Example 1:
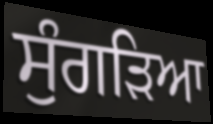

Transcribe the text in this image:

ਸੁੰਗੜਿਆ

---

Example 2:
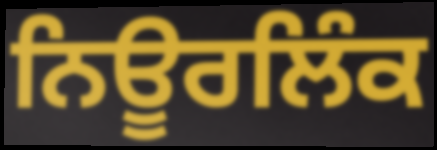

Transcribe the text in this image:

ਨਿਊਰਲਿੰਕ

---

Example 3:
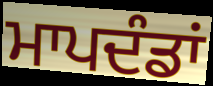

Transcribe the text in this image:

ਮਾਪਦੰਡਾਂ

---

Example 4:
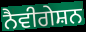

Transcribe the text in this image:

ਨੈਵੀਗੇਸ਼ਨ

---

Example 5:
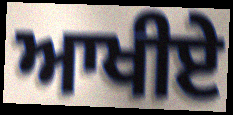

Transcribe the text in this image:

ਆਖੀਏ